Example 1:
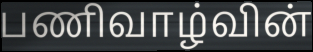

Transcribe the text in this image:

பணிவாழ்வின்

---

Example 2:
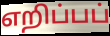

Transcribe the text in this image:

எறிப்பப்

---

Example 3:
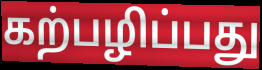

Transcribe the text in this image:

கற்பழிப்பது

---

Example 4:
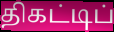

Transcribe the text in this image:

திகட்டிப்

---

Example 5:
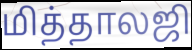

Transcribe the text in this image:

மித்தாலஜி